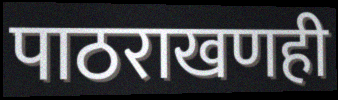
पाठराखणही